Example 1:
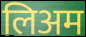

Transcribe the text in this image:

लिअम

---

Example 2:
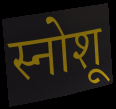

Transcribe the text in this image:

स्नोशू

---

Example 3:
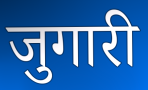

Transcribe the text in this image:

जुगारी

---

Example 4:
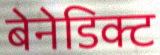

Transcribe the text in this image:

बेनेडिक्ट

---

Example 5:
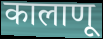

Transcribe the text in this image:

कालाणू